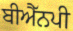
ਬੀਐੱਨਪੀ